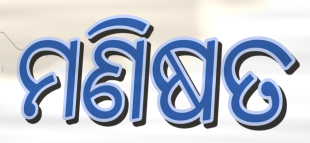
ମଣିଷତ